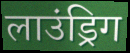
लाउंड्रिग